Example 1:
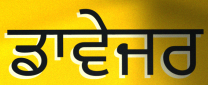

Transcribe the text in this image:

ਡਾਵੇਜਰ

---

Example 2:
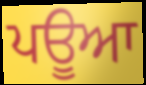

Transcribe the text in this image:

ਪਊਆ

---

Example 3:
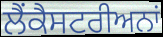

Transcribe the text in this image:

ਲੈਂਕੈਸਟਰੀਅਨਾਂ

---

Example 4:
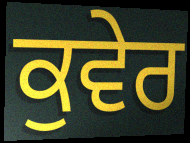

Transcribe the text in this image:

ਕੁਵੇਰ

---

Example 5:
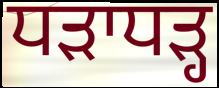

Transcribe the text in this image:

ਧੜਾਧੜ੍ਹ